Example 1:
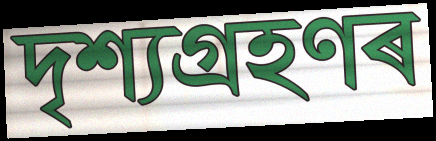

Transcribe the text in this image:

দৃশ্যগ্ৰহণৰ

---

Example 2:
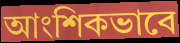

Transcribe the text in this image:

আংশিকভাবে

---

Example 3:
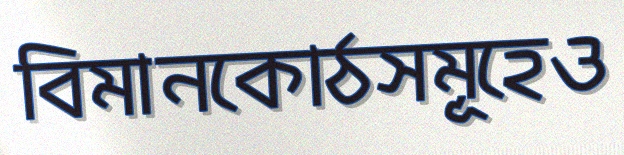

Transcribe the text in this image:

বিমানকোঠসমূহেও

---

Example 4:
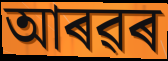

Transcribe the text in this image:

আৰৱৰ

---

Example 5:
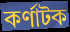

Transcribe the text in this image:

কৰ্ণাটক